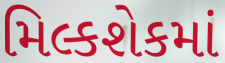
મિલ્કશેકમાં